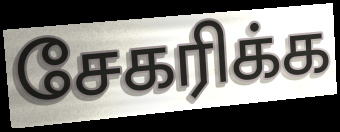
சேகரிக்க